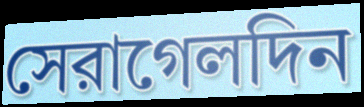
সেরাগেলদিন